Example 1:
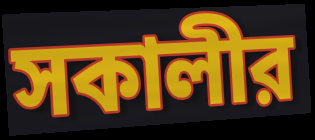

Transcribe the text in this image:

সকালীর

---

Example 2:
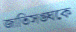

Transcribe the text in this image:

জাতিসঙ্ঘকে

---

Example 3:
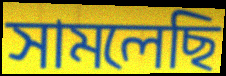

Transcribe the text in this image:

সামলেছি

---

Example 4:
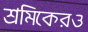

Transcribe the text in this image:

শ্রমিকেরও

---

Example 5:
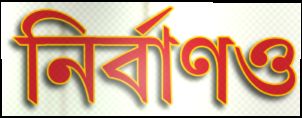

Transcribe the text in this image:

নির্বাণও